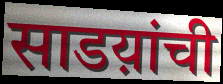
साडय़ांची